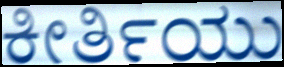
ಕೀರ್ತಿಯು